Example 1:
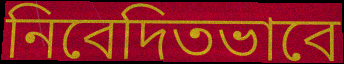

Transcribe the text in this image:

নিবেদিতভাবে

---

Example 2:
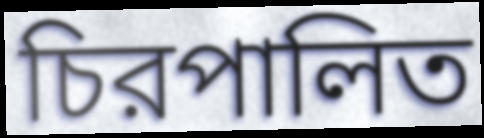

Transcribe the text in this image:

চিরপালিত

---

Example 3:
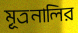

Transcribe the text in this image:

মূত্রনালির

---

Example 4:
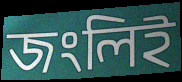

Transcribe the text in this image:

জংলিই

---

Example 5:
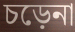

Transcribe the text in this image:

চড়েনা